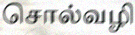
சொல்வழி